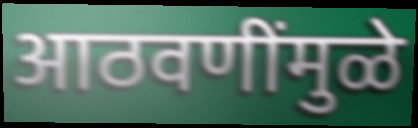
आठवणींमुळे